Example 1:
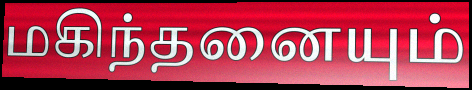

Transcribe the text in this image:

மகிந்தனையும்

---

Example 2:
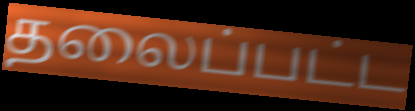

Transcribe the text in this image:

தலைப்பட்ட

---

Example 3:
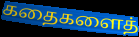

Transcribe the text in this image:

கதைகளைத்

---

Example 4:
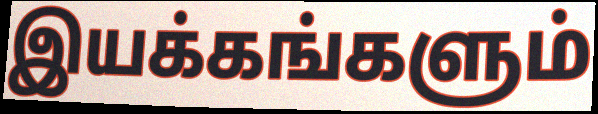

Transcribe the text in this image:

இயக்கங்களும்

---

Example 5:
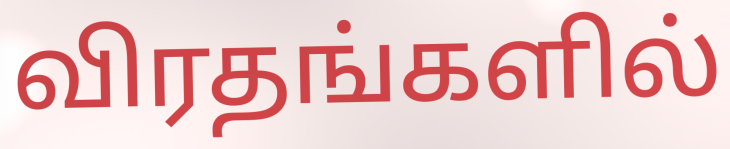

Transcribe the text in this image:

விரதங்களில்